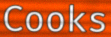
Cooks